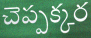
చెప్పక్కర